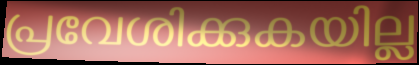
പ്രവേശിക്കുകയില്ല